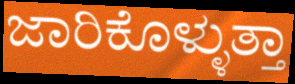
ಜಾರಿಕೊಳ್ಳುತ್ತಾ